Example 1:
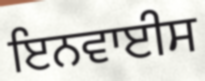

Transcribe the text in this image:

ਇਨਵਾਈਸ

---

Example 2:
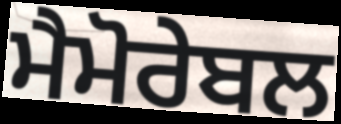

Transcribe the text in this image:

ਮੈਮੋਰੇਬਲ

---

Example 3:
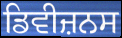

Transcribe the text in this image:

ਡਿਵੀਜ਼ਨਸ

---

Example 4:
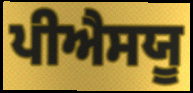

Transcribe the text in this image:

ਪੀਐਸਯੂ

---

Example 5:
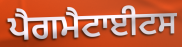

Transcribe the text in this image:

ਪੈਗਮੈਟਾਈਟਸ